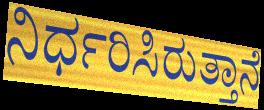
ನಿರ್ಧರಿಸಿರುತ್ತಾನೆ